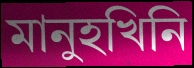
মানুহখিনি